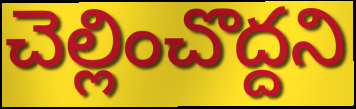
చెల్లించొద్దని